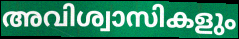
അവിശ്വാസികളും